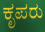
ಕೃಪರು